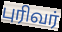
புரிவர்